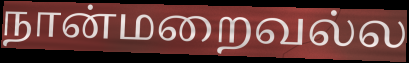
நான்மறைவல்ல